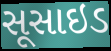
સૂસાઇડ